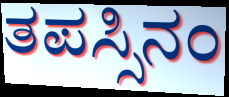
ತಪಸ್ಸಿನಂ